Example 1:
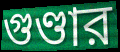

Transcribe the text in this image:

গুণ্ডার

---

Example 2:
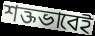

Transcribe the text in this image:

শক্তভাবেই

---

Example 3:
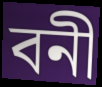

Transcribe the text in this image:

বনী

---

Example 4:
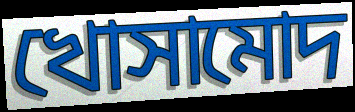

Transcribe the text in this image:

খোসামোদ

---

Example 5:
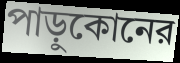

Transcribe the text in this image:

পাড়ুকোনের